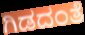
ಗಿಡದಂತೆ